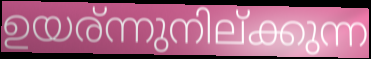
ഉയര്ന്നുനില്ക്കുന്ന